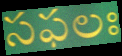
సఫలః